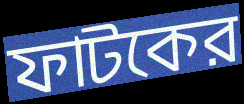
ফাটকের